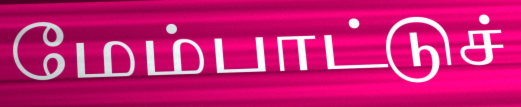
மேம்பாட்டுச்